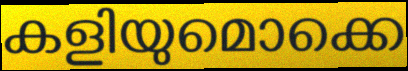
കളിയുമൊക്കെ